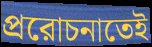
প্ররোচনাতেই